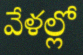
వేళల్లో